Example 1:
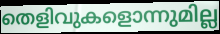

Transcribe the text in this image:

തെളിവുകളൊന്നുമില്ല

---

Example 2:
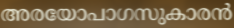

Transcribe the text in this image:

അരയോപാഗസുകാരൻ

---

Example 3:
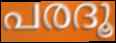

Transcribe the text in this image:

പരദൂ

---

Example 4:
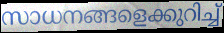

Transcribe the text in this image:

സാധനങ്ങളെക്കുറിച്ച്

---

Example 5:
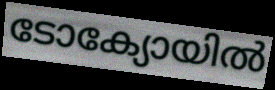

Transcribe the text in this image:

ടോക്യോയിൽ